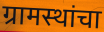
ग्रामस्थांचा